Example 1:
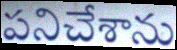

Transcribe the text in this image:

పనిచేశాను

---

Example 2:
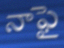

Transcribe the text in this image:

నాఫై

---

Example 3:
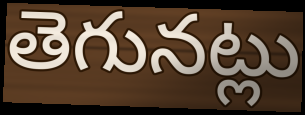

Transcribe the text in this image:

తెగునట్లు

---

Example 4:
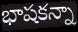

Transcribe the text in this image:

భాషకన్నా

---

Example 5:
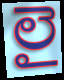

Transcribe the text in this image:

లై